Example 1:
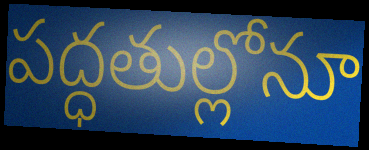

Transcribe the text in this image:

పద్ధతుల్లోనూ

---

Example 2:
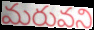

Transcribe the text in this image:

మరువని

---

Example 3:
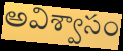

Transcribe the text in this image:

అవిశ్వాసం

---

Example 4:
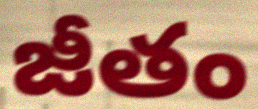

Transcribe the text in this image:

జీతం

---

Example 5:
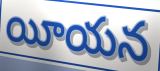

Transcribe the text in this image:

యీయన